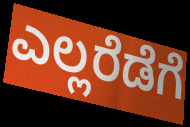
ಎಲ್ಲರೆಡೆಗೆ